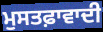
ਮੁਸਤਫ਼ਾਵਾਦੀ